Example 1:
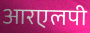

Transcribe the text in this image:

आरएलपी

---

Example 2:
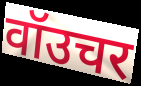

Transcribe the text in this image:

वॉउचर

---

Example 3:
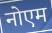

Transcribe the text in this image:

नोएम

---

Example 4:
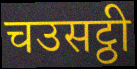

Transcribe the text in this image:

चउसट्ठी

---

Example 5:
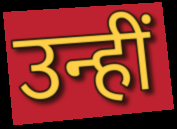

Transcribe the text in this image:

उन्हीं